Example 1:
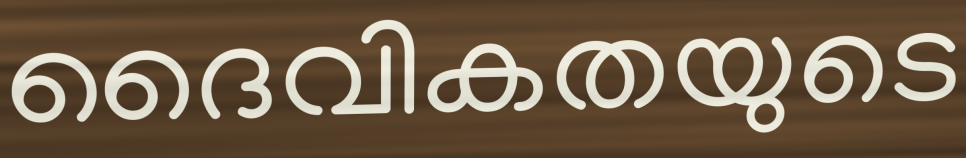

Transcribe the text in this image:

ദൈവികതയുടെ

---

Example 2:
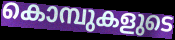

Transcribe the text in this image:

കൊമ്പുകളുടെ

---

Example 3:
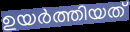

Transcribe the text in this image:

ഉയർത്തിയത്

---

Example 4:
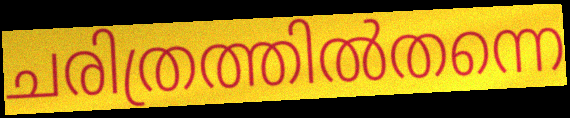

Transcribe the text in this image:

ചരിത്രത്തിൽതന്നെ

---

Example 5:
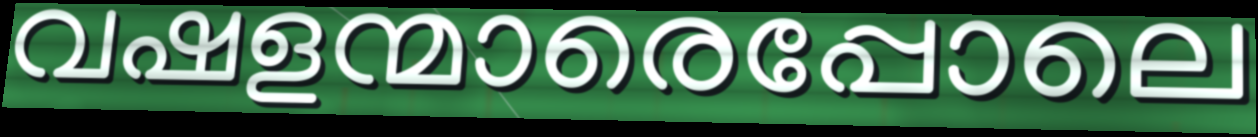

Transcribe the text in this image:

വഷളന്മാരെപ്പോലെ